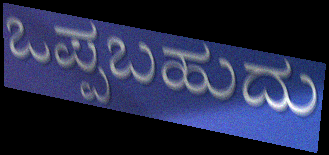
ಒಪ್ಪಬಹುದು